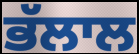
ਭੱਲਾਲ